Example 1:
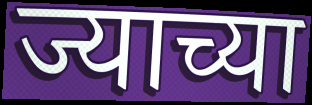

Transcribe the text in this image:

ज्याच्या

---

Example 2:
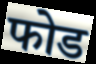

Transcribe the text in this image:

फोड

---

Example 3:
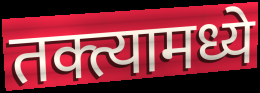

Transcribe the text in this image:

तक्‍त्यामध्ये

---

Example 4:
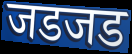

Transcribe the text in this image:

जडजड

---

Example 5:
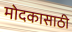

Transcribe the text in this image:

मोदकासाठी